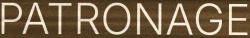
PATRONAGE